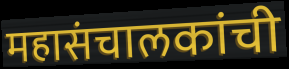
महासंचालकांची